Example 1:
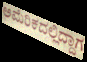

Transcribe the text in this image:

ಅಮೆರಿಕದಲ್ಲಿದ್ದಾಗ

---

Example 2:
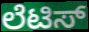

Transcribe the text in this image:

ಲೆಟಿಸ್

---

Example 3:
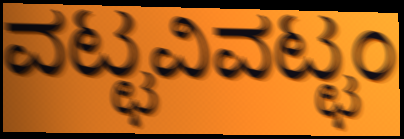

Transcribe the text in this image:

ವಟ್ಟವಿವಟ್ಟಂ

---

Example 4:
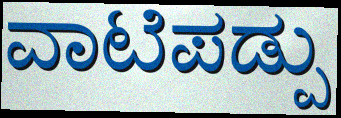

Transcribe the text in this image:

ವಾಟೆಪಡ್ಪು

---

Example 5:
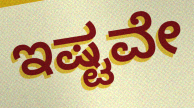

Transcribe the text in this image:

ಇಷ್ಟವೇ